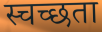
स्चच्छता